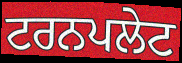
ਟਰਨਪਲੇਟ